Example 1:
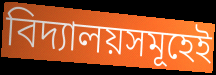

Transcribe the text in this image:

বিদ্যালয়সমূহেই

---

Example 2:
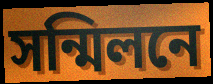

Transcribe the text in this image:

সন্মিলনে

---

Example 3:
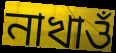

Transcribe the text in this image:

নাখাওঁ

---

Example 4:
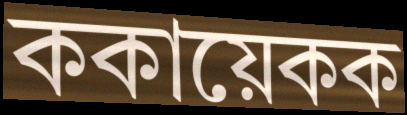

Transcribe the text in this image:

ককায়েকক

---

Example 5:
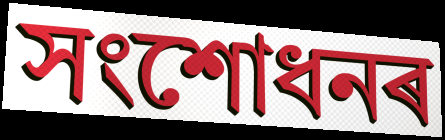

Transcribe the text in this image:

সংশোধনৰ